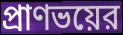
প্রাণভয়ের